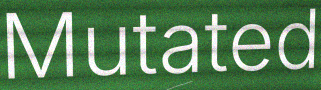
Mutated